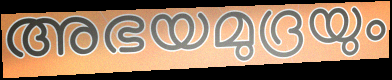
അഭയമുദ്രയും